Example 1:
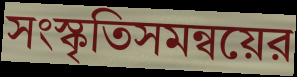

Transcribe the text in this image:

সংস্কৃতিসমন্বয়ের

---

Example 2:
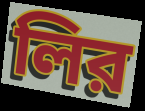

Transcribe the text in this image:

লির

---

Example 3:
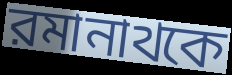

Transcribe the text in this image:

রমানাথকে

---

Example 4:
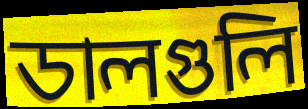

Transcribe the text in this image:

ডালগুলি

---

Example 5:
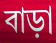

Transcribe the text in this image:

বাড়া